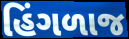
હિંગળાજ